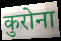
कुरोना